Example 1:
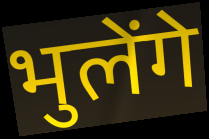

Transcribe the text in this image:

भुलेंगे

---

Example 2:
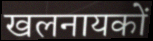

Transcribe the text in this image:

खलनायकों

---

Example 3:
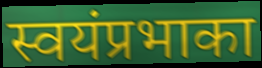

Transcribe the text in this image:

स्वयंप्रभाका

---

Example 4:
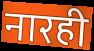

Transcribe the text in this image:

नारही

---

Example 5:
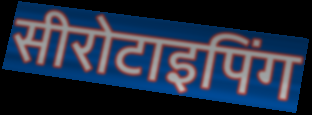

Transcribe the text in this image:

सीरोटाइपिंग